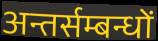
अन्तर्सम्बन्धों